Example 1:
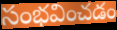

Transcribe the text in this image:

సంభవించడం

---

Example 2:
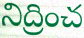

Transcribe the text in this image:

నిద్రించ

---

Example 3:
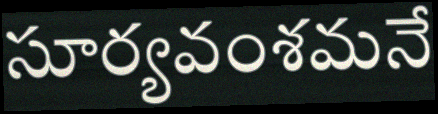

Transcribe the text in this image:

సూర్యవంశమనే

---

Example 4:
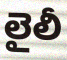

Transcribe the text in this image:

లైలీ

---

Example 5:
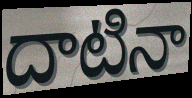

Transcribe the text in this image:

దాటినా